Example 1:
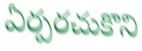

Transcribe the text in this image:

ఏర్పరచుకొని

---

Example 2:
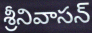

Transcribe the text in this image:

శ్రీనివాసన్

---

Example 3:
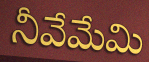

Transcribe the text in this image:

నీవేమేమి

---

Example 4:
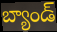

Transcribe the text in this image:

బ్యాండ్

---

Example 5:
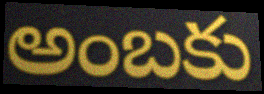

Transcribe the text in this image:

అంబకు